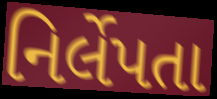
નિર્લેપતા